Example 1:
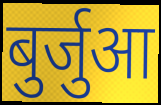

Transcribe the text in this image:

बुर्जुआ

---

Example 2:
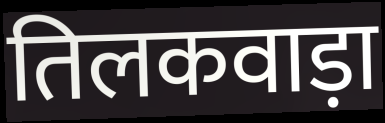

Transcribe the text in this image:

तिलकवाड़ा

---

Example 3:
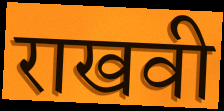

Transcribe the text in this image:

राखवी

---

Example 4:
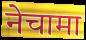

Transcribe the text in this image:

नेचामा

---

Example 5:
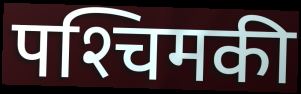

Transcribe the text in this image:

पश्चिमकी